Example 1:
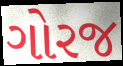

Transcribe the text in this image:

ગોરજ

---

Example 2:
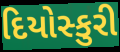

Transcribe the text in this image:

દિયોસ્કુરી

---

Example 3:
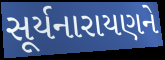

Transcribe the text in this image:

સૂર્યનારાયણને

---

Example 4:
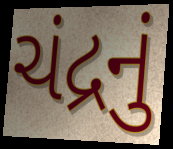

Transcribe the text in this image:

ચંદ્રનું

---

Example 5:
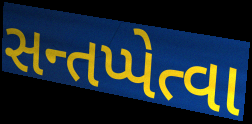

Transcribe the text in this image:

સન્તપ્પેત્વા